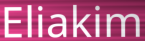
Eliakim